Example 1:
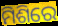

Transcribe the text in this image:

ମିଶିରେ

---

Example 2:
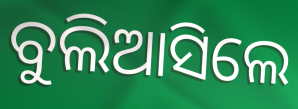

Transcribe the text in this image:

ବୁଲିଆସିଲେ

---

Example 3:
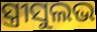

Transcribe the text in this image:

ସ୍ତ୍ରୀସୁଲଭ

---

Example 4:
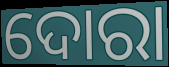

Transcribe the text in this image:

ଦୋରା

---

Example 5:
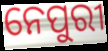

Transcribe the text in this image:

ନେପୁରୀ